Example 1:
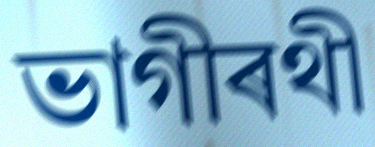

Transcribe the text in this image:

ভাগীৰথী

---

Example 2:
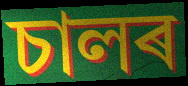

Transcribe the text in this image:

চালৰ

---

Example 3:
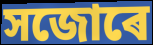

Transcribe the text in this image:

সজোৰে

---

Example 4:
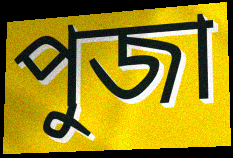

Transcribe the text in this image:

পুজা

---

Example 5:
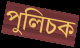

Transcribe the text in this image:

পুলিচক